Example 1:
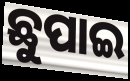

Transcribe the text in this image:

ଛୁପାଇ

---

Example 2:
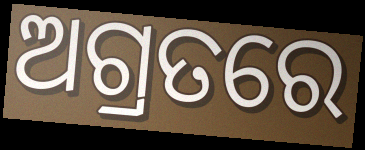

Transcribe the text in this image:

ଅଗ୍ରତରେ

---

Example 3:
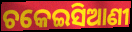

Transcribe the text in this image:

ଚକେଇସିଆଣୀ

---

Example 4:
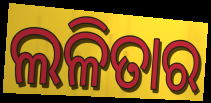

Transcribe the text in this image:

ଲଳିତାର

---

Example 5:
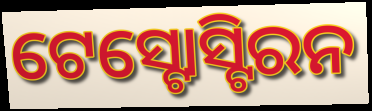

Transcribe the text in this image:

ଟେସ୍ଟୋସ୍ଟିରନ